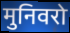
मुनिवरो